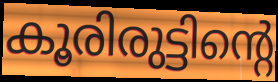
കൂരിരുട്ടിന്റെ